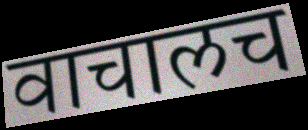
वाचालच